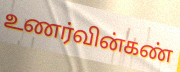
உணர்வின்கண்